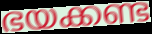
ഭയക്കണ്ട